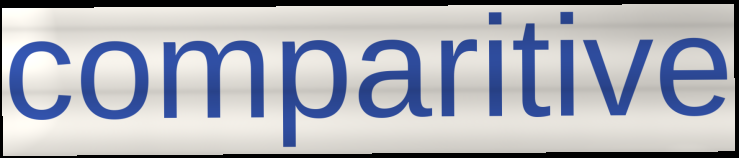
comparitive